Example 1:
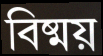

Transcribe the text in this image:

বিষ্ময়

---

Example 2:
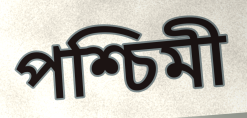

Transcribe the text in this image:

পশ্চিমী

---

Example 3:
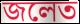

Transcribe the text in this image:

জলেত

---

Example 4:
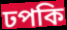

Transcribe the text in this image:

ঢপকি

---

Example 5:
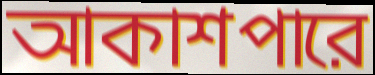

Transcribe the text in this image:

আকাশপারে